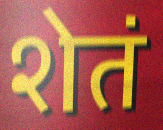
शेतं